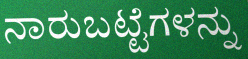
ನಾರುಬಟ್ಟೆಗಳನ್ನು